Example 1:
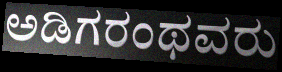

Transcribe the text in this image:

ಅಡಿಗರಂಥವರು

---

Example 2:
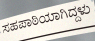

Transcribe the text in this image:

ಸಹಪಾಠಿಯಾಗಿದ್ದಳು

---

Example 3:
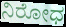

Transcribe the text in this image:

ನಿರೋಧ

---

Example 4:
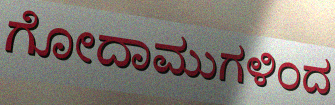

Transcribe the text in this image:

ಗೋದಾಮುಗಳಿಂದ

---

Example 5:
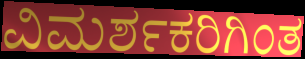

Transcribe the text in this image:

ವಿಮರ್ಶಕರಿಗಿಂತ